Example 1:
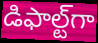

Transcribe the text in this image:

డిఫాల్ట్‌గా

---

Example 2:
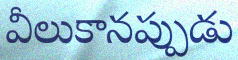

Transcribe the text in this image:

వీలుకానప్పుడు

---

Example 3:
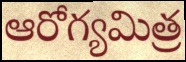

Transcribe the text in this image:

ఆరోగ్యమిత్ర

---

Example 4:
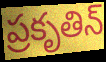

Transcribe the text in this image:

ప్రకృతిన్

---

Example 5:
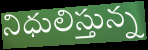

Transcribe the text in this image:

నిధులిస్తున్న